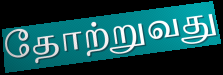
தோற்றுவது